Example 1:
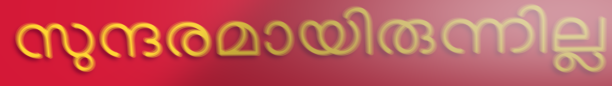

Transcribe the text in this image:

സുന്ദരമായിരുന്നില്ല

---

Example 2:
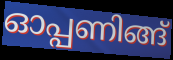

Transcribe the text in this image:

ഓപ്പണിങ്ങ്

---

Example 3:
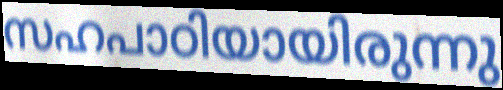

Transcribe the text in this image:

സഹപാഠിയായിരുന്നു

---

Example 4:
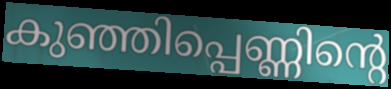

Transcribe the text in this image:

കുഞ്ഞിപ്പെണ്ണിന്റെ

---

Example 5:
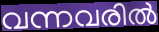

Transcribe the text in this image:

വന്നവരിൽ